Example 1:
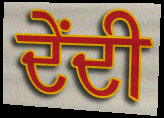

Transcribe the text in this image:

ਦੇਂਦੀ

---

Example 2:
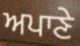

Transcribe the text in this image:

ਅਪਾਣੇ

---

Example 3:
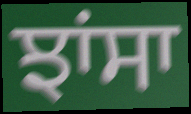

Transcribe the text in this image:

ਝਾਂਸਾ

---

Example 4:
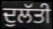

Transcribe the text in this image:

ਦੁਲੱਤੀ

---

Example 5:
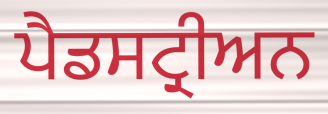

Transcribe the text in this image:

ਪੈਡਸਟ੍ਰੀਅਨ